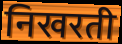
निखरती